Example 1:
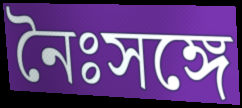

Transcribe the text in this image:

নৈঃসঙ্গে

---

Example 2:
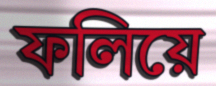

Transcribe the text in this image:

ফলিয়ে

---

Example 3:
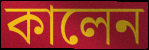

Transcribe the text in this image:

কালেন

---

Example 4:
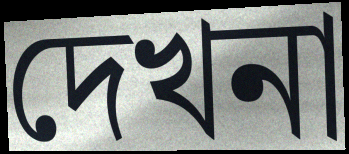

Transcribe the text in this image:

দেখনা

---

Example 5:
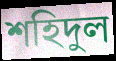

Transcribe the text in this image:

শহিদুল